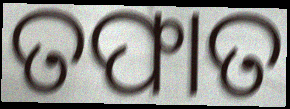
ତଫାତ